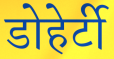
डोहेर्टी